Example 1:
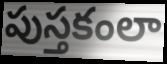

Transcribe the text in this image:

పుస్తకంలా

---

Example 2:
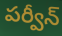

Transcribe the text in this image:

పర్వీన్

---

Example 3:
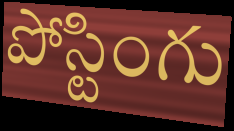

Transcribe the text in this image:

పోస్టింగు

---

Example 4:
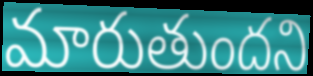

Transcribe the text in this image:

మారుతుందని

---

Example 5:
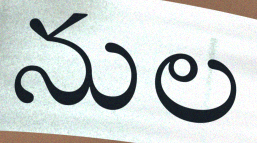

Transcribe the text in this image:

నుల